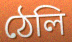
ঠেলি